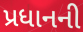
પ્રધાનની